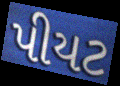
પીયટ